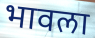
भावला